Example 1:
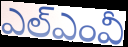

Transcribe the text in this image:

ఎల్ఎంవీ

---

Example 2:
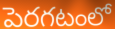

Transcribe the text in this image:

పెరగటంలో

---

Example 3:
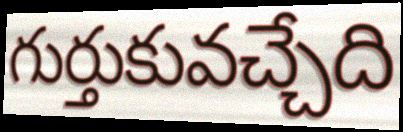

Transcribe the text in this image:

గుర్తుకువచ్చేది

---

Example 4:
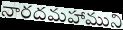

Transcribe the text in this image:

నారదమహాముని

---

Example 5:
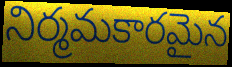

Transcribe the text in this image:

నిర్మమకారమైన